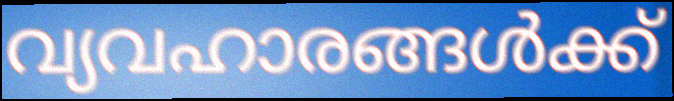
വ്യവഹാരങ്ങൾക്ക്